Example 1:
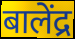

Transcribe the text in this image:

बालेंद्र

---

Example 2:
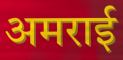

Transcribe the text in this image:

अमराई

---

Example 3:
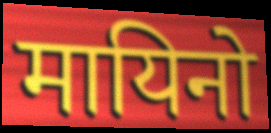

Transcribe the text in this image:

मायिनो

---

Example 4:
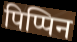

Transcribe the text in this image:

पिप्पिन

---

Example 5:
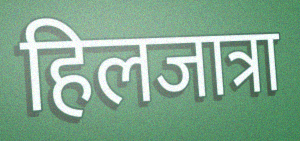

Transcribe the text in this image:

हिलजात्रा